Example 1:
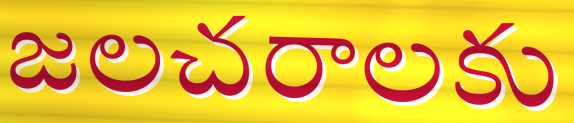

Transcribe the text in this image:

జలచరాలకు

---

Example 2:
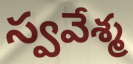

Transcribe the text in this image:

స్వవేశ్మ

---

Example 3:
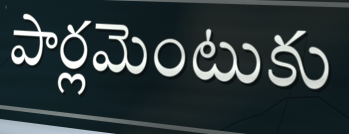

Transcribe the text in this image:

పార్లమెంటుకు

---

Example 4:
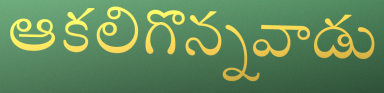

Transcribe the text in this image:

ఆకలిగొన్నవాడు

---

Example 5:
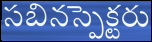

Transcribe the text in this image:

సబినస్పెక్టరు